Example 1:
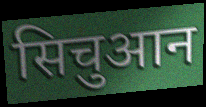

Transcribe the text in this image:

सिचुआन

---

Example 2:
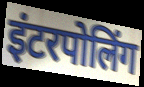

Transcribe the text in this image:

इंटरपोलिंग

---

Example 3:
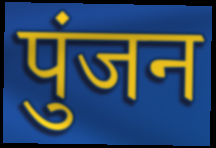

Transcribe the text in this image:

पुंजन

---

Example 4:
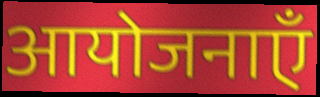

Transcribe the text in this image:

आयोजनाएँ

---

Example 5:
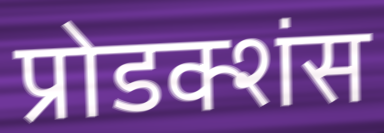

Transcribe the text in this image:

प्रोडक्शंस